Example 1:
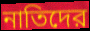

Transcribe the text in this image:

নাতিদের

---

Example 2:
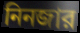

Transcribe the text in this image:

নিনজার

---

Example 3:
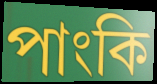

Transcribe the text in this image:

পাংকি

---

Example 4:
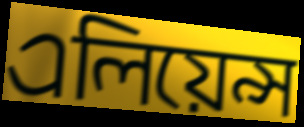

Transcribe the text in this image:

এলিয়েন্স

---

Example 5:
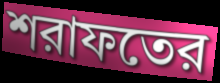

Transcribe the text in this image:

শরাফতের